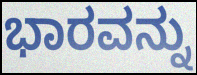
ಭಾರವನ್ನು